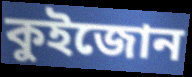
কুইজোন